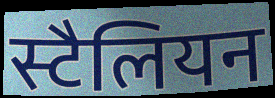
स्टैलियन